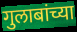
गुलाबांच्या